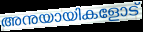
അനുയായികളോട്